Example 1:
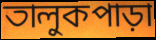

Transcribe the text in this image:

তালুকপাড়া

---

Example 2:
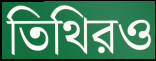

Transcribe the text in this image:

তিথিরও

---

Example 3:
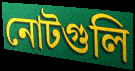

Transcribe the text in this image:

নোটগুলি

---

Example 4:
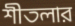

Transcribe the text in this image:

শীতলার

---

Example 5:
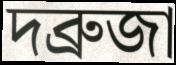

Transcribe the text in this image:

দব্রুজা